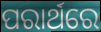
ପରାର୍ଥରେ